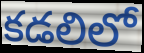
కడలిలో